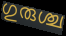
ഗുരുശ്ച